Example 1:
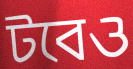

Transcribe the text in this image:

টবেও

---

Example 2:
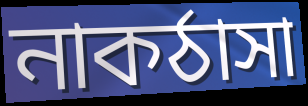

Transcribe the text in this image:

নাকঠাসা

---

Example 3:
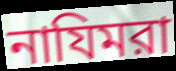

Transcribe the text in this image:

নাযিমরা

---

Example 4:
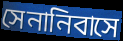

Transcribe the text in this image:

সেনানিবাসে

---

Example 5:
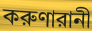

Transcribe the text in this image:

করুণারানী